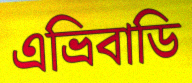
এভ্ৰিবাডি